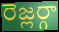
రెజ్లర్గా